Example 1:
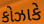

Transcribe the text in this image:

કોઝાકે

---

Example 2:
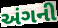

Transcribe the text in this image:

અંગની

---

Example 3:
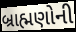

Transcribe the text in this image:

બ્રાહ્મણોની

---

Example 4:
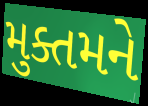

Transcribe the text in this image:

મુક્તમને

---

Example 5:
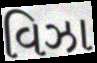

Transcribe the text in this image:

વિઝા